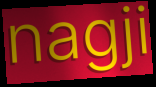
nagji